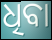
ଧିବା